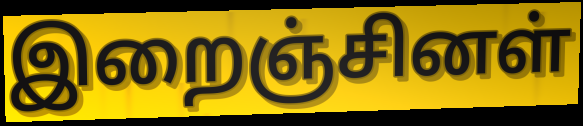
இறைஞ்சினள்